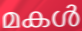
മകൾ